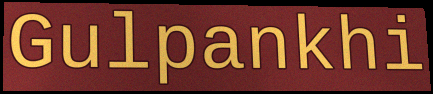
Gulpankhi